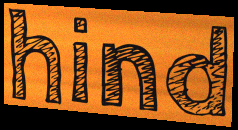
hind